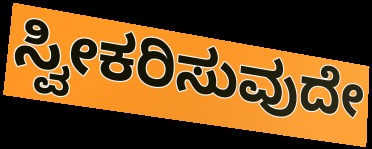
ಸ್ವೀಕರಿಸುವುದೇ